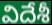
విదేశీ